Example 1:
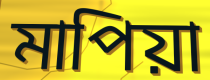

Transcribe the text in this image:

মাপিয়া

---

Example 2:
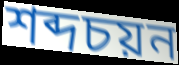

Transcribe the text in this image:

শব্দচয়ন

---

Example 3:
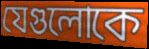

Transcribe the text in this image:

যেগুলোকে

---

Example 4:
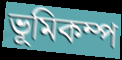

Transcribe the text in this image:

ভূমিকম্প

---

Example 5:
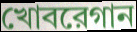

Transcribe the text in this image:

খোবরেগান